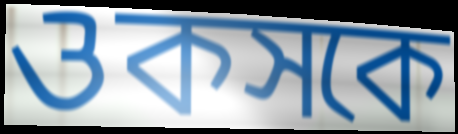
ওকসকে